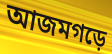
আজমগড়ে